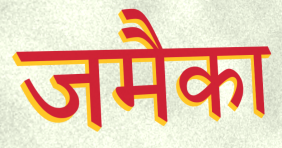
जमैका